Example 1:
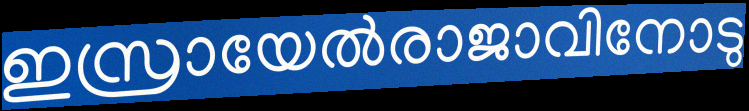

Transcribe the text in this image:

ഇസ്രായേൽരാജാവിനോടു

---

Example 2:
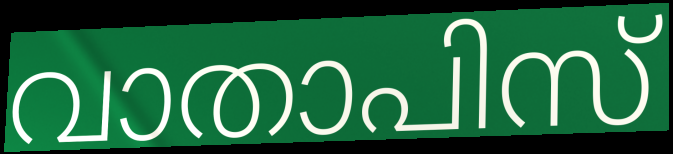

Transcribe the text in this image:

വാതാപിസ്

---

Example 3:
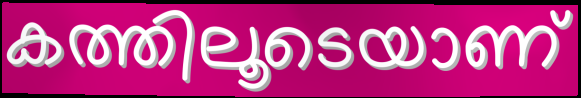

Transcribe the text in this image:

കത്തിലൂടെയാണ്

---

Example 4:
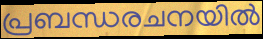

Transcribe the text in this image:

പ്രബന്ധരചനയിൽ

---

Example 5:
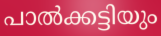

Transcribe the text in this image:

പാൽക്കട്ടിയും